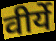
वीर्ये